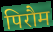
पिरौम